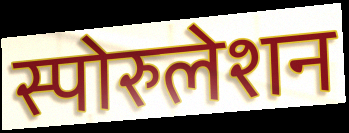
स्पोरुलेशन